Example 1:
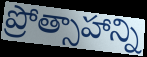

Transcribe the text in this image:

ప్రోత్సాహాన్ని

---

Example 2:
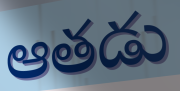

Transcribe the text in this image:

ఆతడు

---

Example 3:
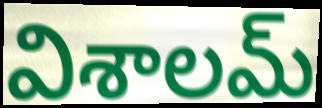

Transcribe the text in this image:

విశాలమ్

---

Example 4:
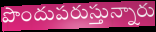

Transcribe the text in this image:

పొందుపరుస్తున్నారు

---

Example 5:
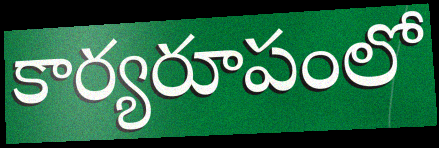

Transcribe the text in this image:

కార్యరూపంలో